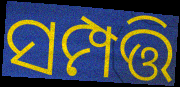
ସମ୍ପତ୍ତି